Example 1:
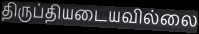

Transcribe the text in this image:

திருப்தியடையவில்லை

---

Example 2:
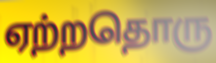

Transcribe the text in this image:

ஏற்றதொரு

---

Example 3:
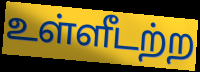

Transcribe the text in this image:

உள்ளீடற்ற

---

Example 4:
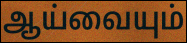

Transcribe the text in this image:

ஆய்வையும்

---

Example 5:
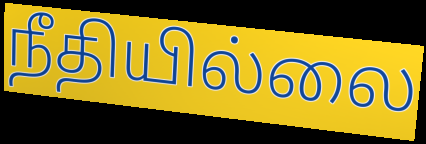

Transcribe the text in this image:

நீதியில்லை